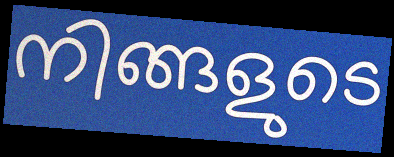
നിങ്ങളുടെ